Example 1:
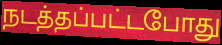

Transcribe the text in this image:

நடத்தப்பட்டபோது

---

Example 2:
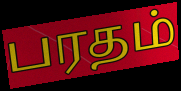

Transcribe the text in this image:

பரதம்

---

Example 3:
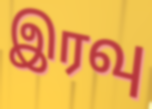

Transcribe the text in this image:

இரவு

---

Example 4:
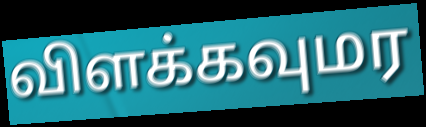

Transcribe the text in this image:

விளக்கவுமர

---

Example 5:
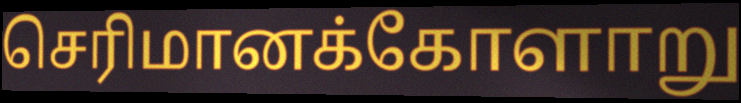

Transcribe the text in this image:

செரிமானக்கோளாறு